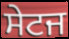
ਸੇਟਜ